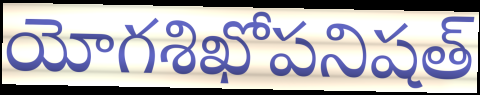
యోగశిఖోపనిషత్